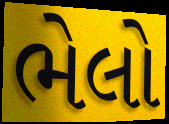
ભેલો